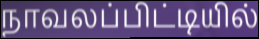
நாவலப்பிட்டியில்